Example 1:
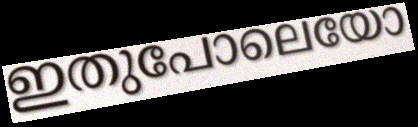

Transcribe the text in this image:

ഇതുപോലെയോ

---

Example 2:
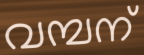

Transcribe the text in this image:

വമ്പന്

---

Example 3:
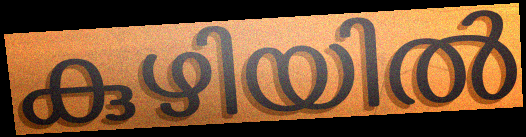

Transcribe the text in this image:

കുഴിയിൽ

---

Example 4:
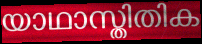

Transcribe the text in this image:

യാഥാസ്തിതിക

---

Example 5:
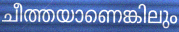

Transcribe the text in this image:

ചീത്തയാണെങ്കിലും